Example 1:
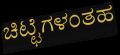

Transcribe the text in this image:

ಚಿಟ್ಟೆಗಳಂತಹ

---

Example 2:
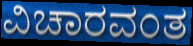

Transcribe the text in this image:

ವಿಚಾರವಂತ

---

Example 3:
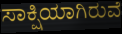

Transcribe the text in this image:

ಸಾಕ್ಷಿಯಾಗಿರುವೆ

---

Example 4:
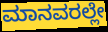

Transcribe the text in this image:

ಮಾನವರಲ್ಲೇ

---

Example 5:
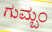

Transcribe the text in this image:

ಗುಮ್ಬಂ